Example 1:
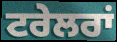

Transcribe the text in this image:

ਟਰੇਲਰਾਂ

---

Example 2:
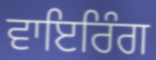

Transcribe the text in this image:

ਵਾਇਰਿੰਗ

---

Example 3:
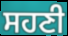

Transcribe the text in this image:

ਸਹਣੀ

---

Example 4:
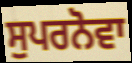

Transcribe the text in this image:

ਸੁਪਰਨੋਵਾ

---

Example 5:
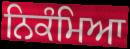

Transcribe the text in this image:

ਨਿਕੰਮਿਆ